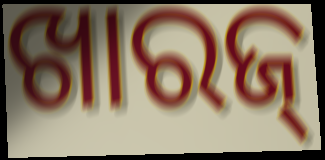
ଖାରଜ୍